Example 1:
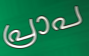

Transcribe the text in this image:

പ്രാപ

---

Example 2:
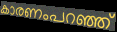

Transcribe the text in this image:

കാരണംപറഞ്ഞ്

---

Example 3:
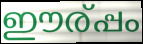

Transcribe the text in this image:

ഈര്പ്പം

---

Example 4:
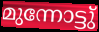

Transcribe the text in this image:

മുന്നോട്ടു്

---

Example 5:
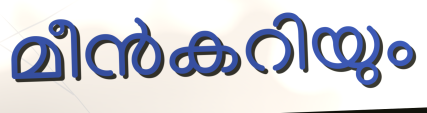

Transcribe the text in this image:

മീൻകറിയും